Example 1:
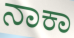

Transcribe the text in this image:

ನಾಕಾ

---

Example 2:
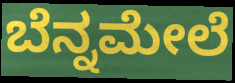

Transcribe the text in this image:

ಬೆನ್ನಮೇಲೆ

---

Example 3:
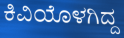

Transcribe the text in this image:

ಕಿವಿಯೊಳಗಿದ್ದ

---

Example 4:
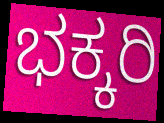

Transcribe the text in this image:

ಭಕ್ಕರಿ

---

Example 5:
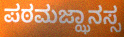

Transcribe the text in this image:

ಪಠಮಜ್ಝಾನಸ್ಸ